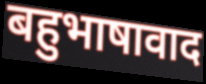
बहुभाषावाद